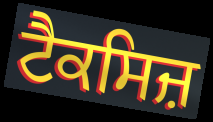
ਟੈਕਸਿਜ਼